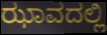
ಝಾವದಲ್ಲಿ